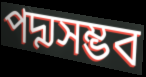
পদ্মসম্ভব